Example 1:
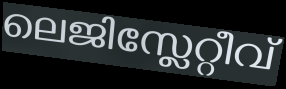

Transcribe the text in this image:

ലെജിസ്ലേറ്റീവ്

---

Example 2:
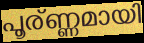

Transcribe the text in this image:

പൂര്ണ്ണമായി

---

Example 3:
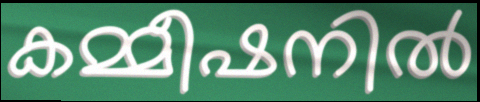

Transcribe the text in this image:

കമ്മീഷനിൽ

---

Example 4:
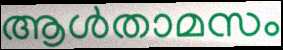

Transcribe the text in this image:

ആൾതാമസം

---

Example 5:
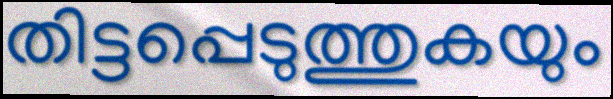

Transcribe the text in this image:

തിട്ടപ്പെടുത്തുകയും